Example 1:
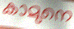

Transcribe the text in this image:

കാമുനെ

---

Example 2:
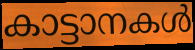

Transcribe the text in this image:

കാട്ടാനകൾ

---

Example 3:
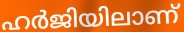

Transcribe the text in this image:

ഹർജിയിലാണ്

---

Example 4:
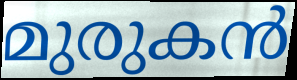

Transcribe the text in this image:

മുരുകൻ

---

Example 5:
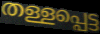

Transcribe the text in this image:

തള്ളപ്പെട്ട